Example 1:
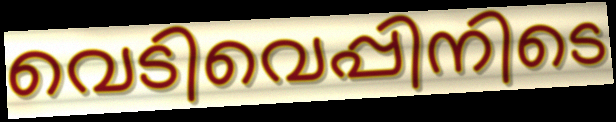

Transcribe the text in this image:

വെടിവെപ്പിനിടെ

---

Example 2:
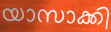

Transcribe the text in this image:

യാസാക്കി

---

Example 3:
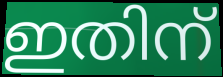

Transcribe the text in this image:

ഇതിന്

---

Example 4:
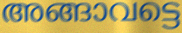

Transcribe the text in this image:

അങ്ങാവട്ടെ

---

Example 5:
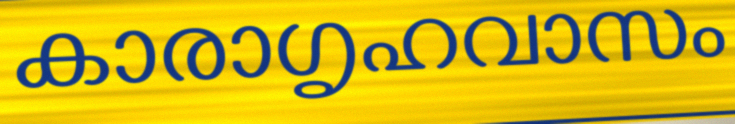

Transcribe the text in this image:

കാരാഗൃഹവാസം